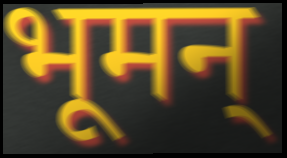
भूमन्